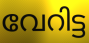
വേറിട്ട